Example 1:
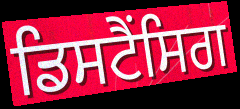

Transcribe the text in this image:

ਡਿਸਟੈਂਸਿਗ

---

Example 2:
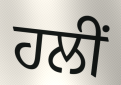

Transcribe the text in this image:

ਹਲੀਂ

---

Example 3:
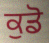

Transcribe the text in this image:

ਕੁਡੋ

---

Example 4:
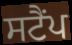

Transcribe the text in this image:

ਸਟੈਂਪ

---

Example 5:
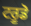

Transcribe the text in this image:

ਟਰੂਡੋ